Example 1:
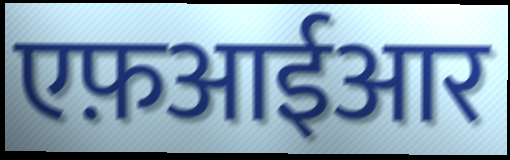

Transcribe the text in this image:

एफ़आईआर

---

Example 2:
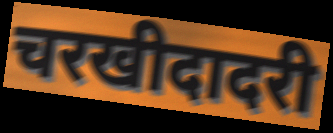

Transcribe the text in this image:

चरखीदादरी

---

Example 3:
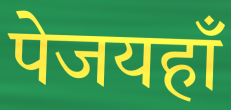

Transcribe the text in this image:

पेजयहाँ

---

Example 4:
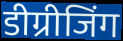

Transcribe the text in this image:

डीग्रीजिंग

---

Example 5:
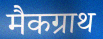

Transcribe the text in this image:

मैकग्राथ